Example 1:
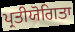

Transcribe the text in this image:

ਪ੍ਰਤੀਯੋਗਿਤਾ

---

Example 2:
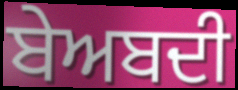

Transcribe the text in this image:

ਬੇਅਬਦੀ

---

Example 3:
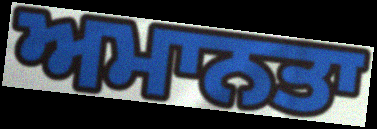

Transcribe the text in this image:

ਅਮਾਨਤਾ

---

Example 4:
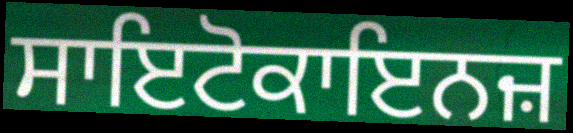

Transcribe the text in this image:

ਸਾਇਟੋਕਾਇਨਜ਼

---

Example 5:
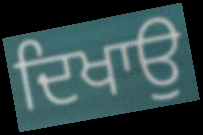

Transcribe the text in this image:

ਦਿਖਾਉ